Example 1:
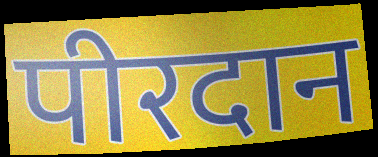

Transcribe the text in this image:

पीरदान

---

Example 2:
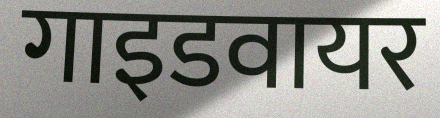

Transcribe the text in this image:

गाइडवायर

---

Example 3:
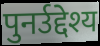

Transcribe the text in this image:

पुनर्उद्देश्य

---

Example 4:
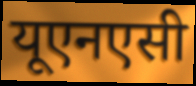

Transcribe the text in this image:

यूएनएसी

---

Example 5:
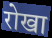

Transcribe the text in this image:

रोखा